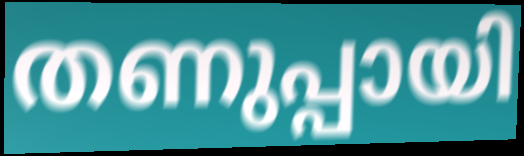
തണുപ്പായി